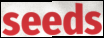
seeds